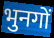
भुनगों